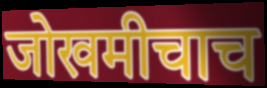
जोखमीचाच